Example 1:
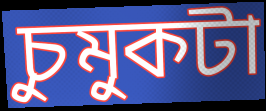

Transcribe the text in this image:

চুমুকটা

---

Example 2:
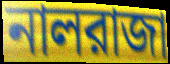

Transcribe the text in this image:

নালরাজা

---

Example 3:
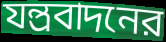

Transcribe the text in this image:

যন্ত্রবাদনের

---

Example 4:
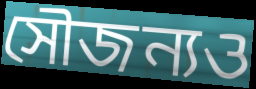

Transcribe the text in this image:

সৌজন্যও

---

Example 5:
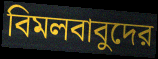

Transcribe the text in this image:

বিমলবাবুদের